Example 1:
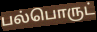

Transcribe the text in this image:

பல்பொருட்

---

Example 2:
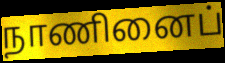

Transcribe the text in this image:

நாணினைப்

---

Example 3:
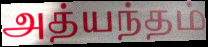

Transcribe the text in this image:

அத்யந்தம்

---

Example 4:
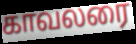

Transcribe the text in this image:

காவலரை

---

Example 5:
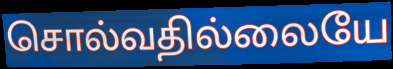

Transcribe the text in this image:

சொல்வதில்லையே